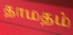
தாமதம்